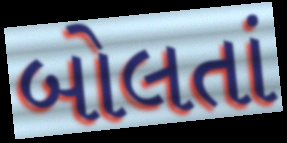
બોલતાં